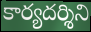
కార్యదర్శిని